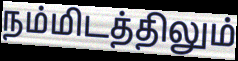
நம்மிடத்திலும்